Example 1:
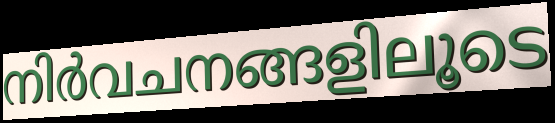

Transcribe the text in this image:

നിർവചനങ്ങളിലൂടെ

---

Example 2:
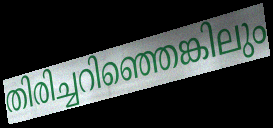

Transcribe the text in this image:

തിരിച്ചറിഞ്ഞെങ്കിലും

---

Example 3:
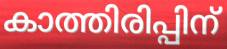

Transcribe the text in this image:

കാത്തിരിപ്പിന്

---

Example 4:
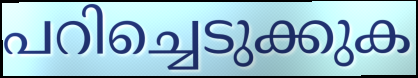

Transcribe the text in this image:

പറിച്ചെടുക്കുക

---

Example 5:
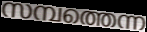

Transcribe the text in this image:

സമ്പത്തെന്ന